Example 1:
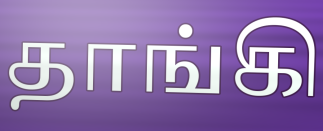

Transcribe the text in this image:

தாங்கி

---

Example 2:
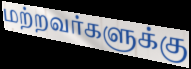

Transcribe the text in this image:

மற்றவர்களுக்கு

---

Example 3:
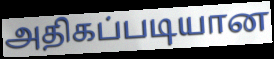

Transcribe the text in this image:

அதிகப்படியான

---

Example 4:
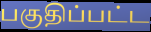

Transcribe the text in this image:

பகுதிப்பட்ட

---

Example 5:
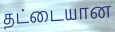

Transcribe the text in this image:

தட்டையான